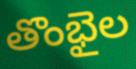
తొంభైల